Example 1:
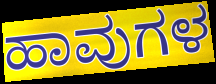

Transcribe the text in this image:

ಹಾವುಗಳ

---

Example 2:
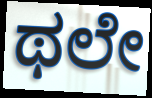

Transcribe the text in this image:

ಥಲೇ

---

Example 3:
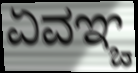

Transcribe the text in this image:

ಏವಞ್ಚ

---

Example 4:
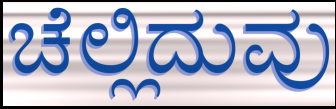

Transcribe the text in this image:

ಚೆಲ್ಲಿದುವು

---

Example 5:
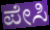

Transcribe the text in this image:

ಪೇಸಿ